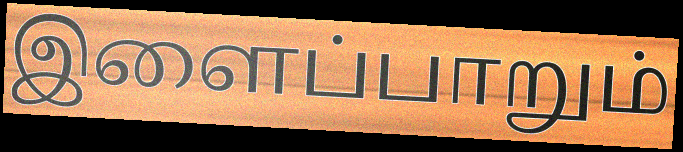
இளைப்பாறும்